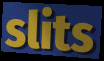
slits